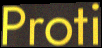
Proti